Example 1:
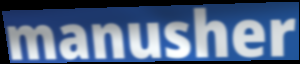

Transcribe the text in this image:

manusher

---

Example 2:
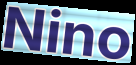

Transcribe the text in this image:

Nino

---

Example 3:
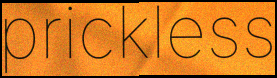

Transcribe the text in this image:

prickless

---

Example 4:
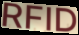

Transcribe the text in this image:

RFID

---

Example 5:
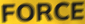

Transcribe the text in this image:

FORCE